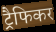
ट्रैफिकर